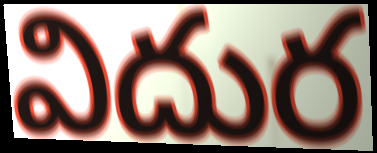
విదుర